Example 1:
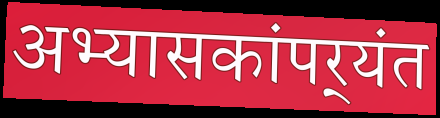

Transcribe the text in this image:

अभ्यासकांपर्यंत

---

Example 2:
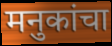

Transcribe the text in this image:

मनुकांचा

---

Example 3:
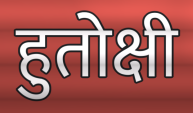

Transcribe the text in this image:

हुतोक्षी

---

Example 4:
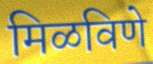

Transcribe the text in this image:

मिळविणे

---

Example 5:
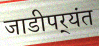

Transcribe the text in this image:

जाडीपर्यंत